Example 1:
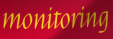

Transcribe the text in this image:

monitoring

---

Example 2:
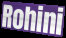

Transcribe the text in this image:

Rohini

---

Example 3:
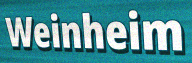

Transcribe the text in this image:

Weinheim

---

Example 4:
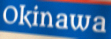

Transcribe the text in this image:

Okinawa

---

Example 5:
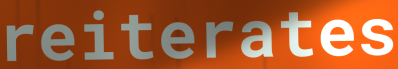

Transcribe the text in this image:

reiterates